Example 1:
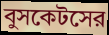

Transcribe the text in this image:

বুসকেটসের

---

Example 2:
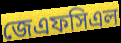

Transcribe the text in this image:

জেএফসিএল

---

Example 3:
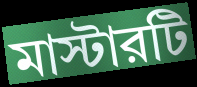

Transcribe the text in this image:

মাস্টারটি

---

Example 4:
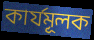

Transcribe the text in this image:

কার্যমূলক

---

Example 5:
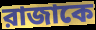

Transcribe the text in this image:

রাজাকে